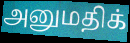
அனுமதிக்